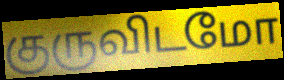
குருவிடமோ